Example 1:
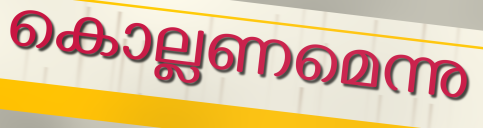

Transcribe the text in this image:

കൊല്ലണമെന്നു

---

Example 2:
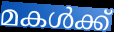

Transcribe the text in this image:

മകൾക്ക്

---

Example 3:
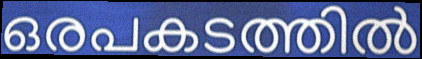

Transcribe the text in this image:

ഒരപകടത്തിൽ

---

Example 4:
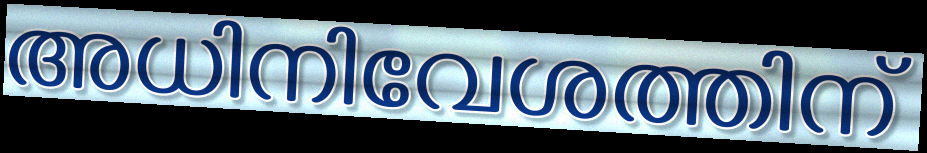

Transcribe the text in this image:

അധിനിവേശത്തിന്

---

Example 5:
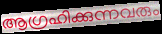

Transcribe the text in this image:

ആഗ്രഹിക്കുന്നവരും